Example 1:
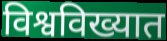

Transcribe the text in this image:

विश्वविख्यात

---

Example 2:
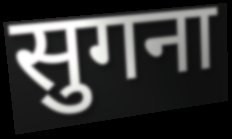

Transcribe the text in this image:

सुगना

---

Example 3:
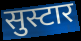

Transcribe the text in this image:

सुस्टार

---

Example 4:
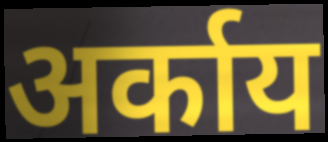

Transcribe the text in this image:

अर्काय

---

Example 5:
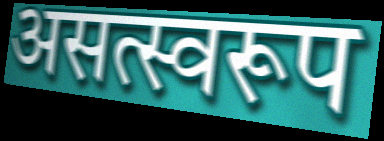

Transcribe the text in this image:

असत्स्वरूप